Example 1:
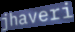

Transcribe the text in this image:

jhaveri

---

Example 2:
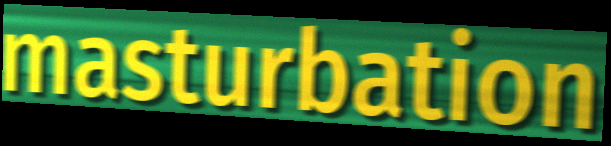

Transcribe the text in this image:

masturbation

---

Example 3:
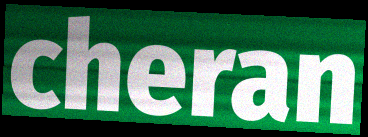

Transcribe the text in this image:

cheran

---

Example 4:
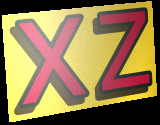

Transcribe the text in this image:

xz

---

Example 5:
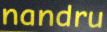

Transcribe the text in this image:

nandru